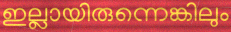
ഇല്ലായിരുന്നെങ്കിലും